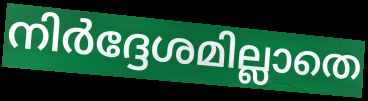
നിർദ്ദേശമില്ലാതെ